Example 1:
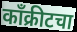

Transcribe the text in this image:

काँक्रीटचा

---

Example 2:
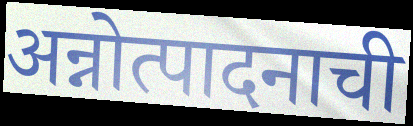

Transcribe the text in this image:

अन्नोत्पादनाची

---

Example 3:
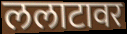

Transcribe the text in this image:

ललाटावर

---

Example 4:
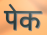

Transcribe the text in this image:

पेक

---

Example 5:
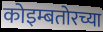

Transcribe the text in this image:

कोइम्बतोरच्या